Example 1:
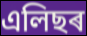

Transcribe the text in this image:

এলিছৰ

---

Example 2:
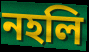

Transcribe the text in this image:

নহলি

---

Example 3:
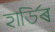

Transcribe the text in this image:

হাৰ্ডিৰ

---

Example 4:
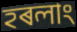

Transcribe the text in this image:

হৰলাং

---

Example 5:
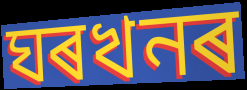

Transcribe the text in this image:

ঘৰখনৰ